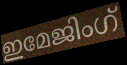
ഇമേജിംഗ്